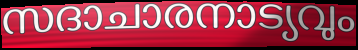
സദാചാരനാട്യവും